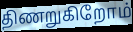
திணறுகிறோம்